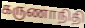
கருணாநிதி